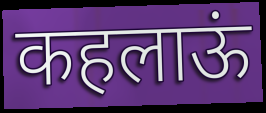
कहलाऊं